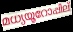
മധ്യയൂറോപ്പില്